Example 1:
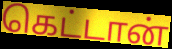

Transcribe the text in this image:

கெட்டான்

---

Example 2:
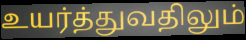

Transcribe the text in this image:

உயர்த்துவதிலும்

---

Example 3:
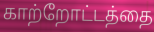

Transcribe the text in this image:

காற்றோட்டத்தை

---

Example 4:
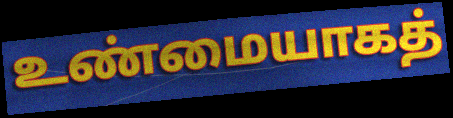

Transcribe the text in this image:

உண்மையாகத்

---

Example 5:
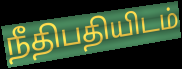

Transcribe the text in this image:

நீதிபதியிடம்